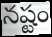
నష్టం